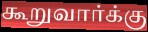
கூறுவார்க்கு